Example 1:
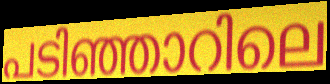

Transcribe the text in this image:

പടിഞ്ഞാറിലെ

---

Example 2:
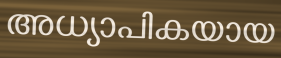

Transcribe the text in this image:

അധ്യാപികയായ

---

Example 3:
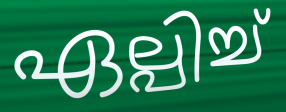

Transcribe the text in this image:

ഏല്പിച്ച്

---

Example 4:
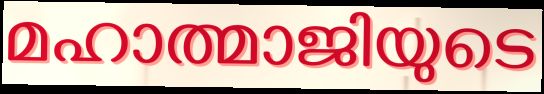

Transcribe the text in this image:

മഹാത്മാജിയുടെ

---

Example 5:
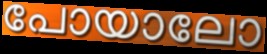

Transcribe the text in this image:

പോയാലോ